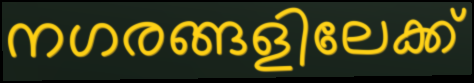
നഗരങ്ങളിലേക്ക്